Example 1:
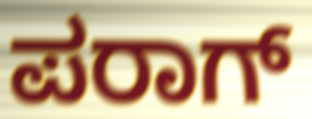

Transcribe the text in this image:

ಪರಾಗ್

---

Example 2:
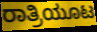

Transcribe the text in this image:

ರಾತ್ರಿಯೂಟ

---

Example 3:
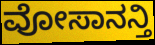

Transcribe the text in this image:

ವೋಸಾನನ್ತಿ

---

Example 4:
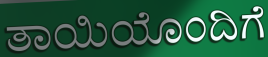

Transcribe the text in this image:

ತಾಯಿಯೊಂದಿಗೆ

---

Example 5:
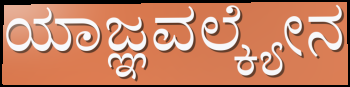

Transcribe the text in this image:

ಯಾಜ್ಞವಲ್ಕ್ಯೇನ